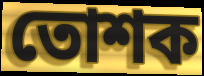
তোশক